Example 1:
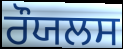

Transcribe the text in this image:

ਰੌਯਲਸ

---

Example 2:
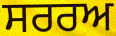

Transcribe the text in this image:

ਸਰਰਅ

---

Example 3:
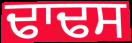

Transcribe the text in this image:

ਢਾਢਸ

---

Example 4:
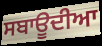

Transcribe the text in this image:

ਸਬਾਊਦੀਆ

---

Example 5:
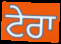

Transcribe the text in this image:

ਟੇਰਾ